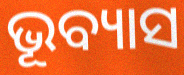
ଭୂବ୍ୟାସ